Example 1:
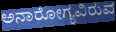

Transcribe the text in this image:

ಅನಾರೋಗ್ಯವಿರುವ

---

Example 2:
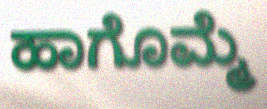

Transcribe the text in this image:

ಹಾಗೊಮ್ಮೆ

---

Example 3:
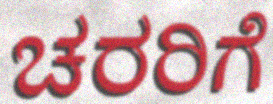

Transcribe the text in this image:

ಚರರಿಗೆ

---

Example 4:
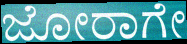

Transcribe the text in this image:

ಜೋರಾಗೇ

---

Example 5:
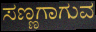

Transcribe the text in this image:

ಸಣ್ಣಗಾಗುವ